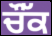
ਚੌੱਕ